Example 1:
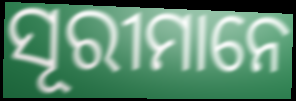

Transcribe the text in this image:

ସୂରୀମାନେ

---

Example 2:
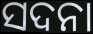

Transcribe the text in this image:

ସଦନା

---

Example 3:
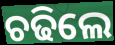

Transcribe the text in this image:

ଚଢିଲେ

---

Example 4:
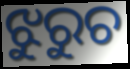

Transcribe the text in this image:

ଝୁରୁଚ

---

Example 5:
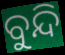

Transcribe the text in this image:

ବୁନ୍ଦି